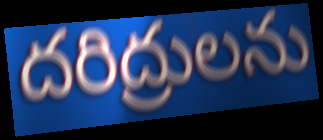
దరిద్రులను